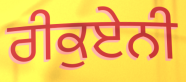
ਰੀਕੁਏਨੀ